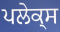
ਪਲੇਕ੍ਸ